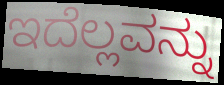
ಇದೆಲ್ಲವನ್ನು